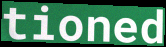
tioned